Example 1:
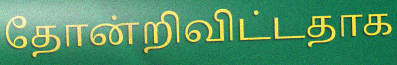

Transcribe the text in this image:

தோன்றிவிட்டதாக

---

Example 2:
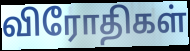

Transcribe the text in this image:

விரோதிகள்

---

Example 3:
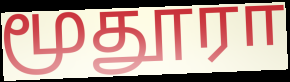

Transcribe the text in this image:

மூதூரா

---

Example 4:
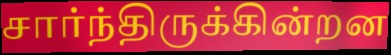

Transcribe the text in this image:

சார்ந்திருக்கின்றன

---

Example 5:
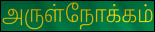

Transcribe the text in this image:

அருள்நோக்கம்